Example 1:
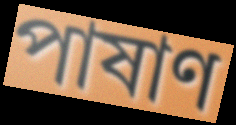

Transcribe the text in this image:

পাষাণ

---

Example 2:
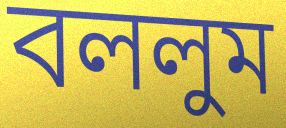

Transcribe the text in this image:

বললুম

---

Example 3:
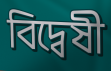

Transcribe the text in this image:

বিদ্বেষী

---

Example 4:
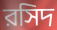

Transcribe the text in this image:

রসিদ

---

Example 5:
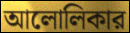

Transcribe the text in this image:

আলোলিকার